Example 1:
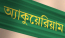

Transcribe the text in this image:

অ্যাকুয়েরিয়াম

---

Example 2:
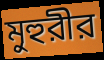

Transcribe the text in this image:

মুহুরীর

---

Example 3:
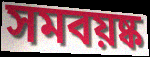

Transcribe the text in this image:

সমবয়ষ্ক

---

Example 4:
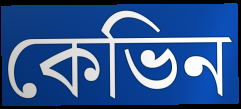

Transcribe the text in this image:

কেভিন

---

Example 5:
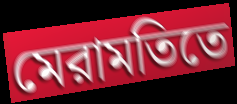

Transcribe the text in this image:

মেরামতিতে